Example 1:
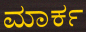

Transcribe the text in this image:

ಮಾರ್ಕ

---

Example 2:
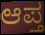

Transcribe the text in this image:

ಆಪ್ತ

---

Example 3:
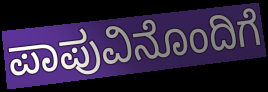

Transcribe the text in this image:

ಪಾಪುವಿನೊಂದಿಗೆ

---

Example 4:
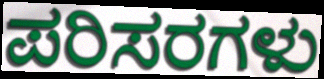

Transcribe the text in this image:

ಪರಿಸರಗಳು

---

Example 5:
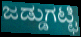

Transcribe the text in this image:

ಜಡ್ಡುಗಟ್ಟಿ